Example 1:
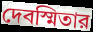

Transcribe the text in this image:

দেবস্মিতার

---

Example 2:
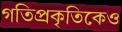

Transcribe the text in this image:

গতিপ্রকৃতিকেও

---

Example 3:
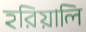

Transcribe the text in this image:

হরিয়ালি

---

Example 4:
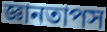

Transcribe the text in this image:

জ্ঞানতাপস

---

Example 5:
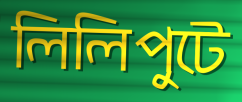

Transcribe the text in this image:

লিলিপুটে